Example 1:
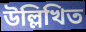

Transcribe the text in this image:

উল্লিখিত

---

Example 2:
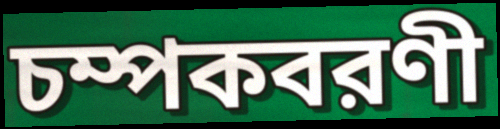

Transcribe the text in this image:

চম্পকবরণী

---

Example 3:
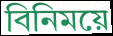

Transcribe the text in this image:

বিনিময়ে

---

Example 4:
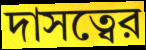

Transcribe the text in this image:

দাসত্বের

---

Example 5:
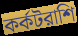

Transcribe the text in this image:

কর্কটরাশি